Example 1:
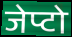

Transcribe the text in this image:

जेप्टो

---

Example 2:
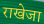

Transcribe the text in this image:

राखेजा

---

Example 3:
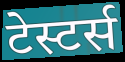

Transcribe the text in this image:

टेस्टर्स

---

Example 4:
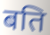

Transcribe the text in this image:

बति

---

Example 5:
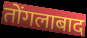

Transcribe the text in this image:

तोंगलाबाद